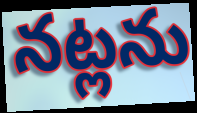
నట్లను